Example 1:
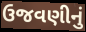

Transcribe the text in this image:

ઉજવણીનું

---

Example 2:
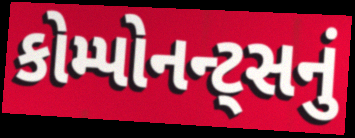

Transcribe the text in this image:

કોમ્પોનન્ટ્સનું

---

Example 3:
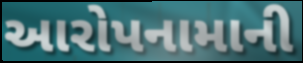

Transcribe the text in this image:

આરોપનામાની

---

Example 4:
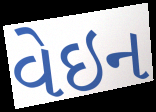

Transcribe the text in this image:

વેઇન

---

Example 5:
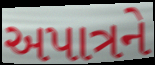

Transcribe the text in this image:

અપાત્રને